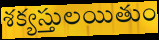
శక్యస్తులయితుం